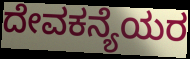
ದೇವಕನ್ಯೆಯರ